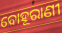
ବୋହୂରାଣୀ